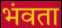
भंवता